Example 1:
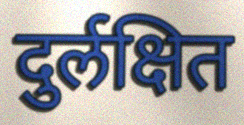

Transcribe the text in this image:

दुर्लक्षित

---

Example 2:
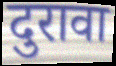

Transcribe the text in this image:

दुरावा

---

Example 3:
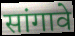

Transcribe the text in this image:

सांगावे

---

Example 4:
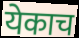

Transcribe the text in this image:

येकाच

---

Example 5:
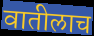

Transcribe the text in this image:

वातीलाच